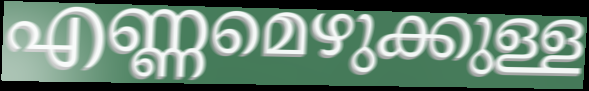
എണ്ണമെഴുക്കുള്ള